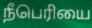
நீபெரியை